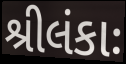
શ્રીલંકાઃ